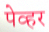
पेव्हर